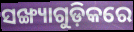
ସଙ୍ଖ୍ୟାଗୁଡ଼ିକରେ